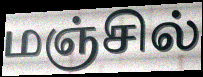
மஞ்சில்